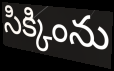
సిక్కింను